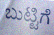
ಬುಟ್ಟಿಗೆ